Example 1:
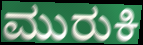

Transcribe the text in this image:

ಮುರುಕಿ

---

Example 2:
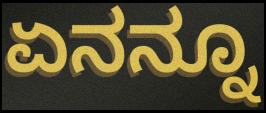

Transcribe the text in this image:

ಏನನ್ನೂ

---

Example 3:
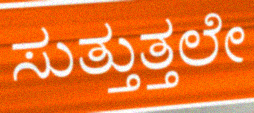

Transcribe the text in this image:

ಸುತ್ತುತ್ತಲೇ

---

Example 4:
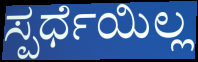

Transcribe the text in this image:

ಸ್ಪರ್ಧೆಯಿಲ್ಲ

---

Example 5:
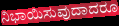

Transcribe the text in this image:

ನಿಭಾಯಿಸುವುದಾದರೂ